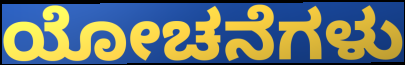
ಯೋಚನೆಗಳು